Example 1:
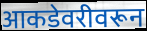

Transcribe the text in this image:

आकडेवरीवरून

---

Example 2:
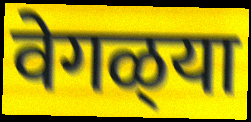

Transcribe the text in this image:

वेगळ्‌या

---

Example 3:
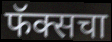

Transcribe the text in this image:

फॅक्सचा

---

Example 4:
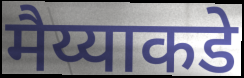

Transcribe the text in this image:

मैय्याकडे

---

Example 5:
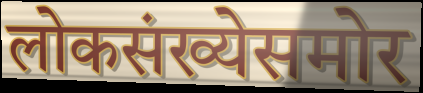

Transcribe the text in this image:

लोकसंख्येसमोर